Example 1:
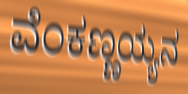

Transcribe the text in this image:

ವೆಂಕಣ್ಣಯ್ಯನ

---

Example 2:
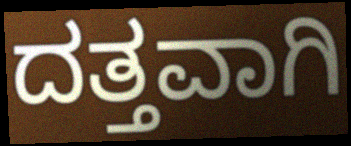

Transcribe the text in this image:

ದತ್ತವಾಗಿ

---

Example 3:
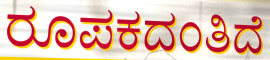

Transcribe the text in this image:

ರೂಪಕದಂತಿದೆ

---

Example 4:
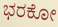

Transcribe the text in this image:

ಭರಕೋ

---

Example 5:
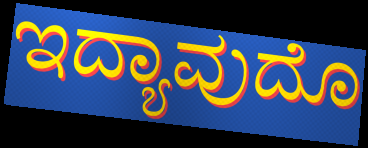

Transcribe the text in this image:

ಇದ್ಯಾವುದೊ